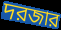
দরজার